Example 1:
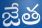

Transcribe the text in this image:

జేత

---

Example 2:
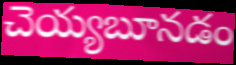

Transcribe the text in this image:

చెయ్యబూనడం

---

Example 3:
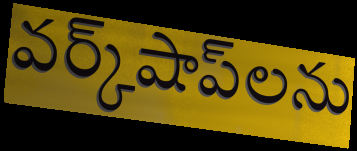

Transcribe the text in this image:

వర్క్‌షాప్‌లను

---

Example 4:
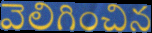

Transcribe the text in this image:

వెలిగించిన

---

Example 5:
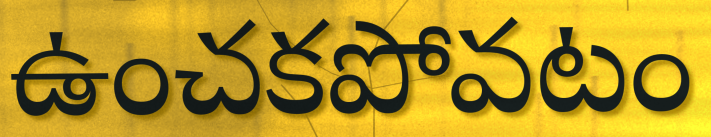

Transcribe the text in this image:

ఉంచకపోవటం